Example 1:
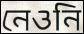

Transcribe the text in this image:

নেওনি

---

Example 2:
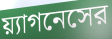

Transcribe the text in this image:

য়্যাগনেসের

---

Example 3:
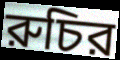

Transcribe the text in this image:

রুচির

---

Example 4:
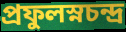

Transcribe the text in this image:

প্রফুলস্নচন্দ্র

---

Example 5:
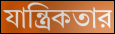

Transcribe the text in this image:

যান্ত্রিকতার